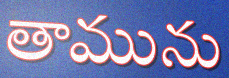
తామును